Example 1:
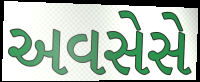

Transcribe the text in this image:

અવસેસે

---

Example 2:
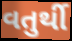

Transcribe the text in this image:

વતુર્થી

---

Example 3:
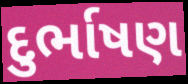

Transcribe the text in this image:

દુર્ભાષણ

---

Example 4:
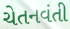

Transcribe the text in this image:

ચેતનવંતી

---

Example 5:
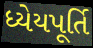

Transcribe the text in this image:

ધ્યેયપૂર્તિ